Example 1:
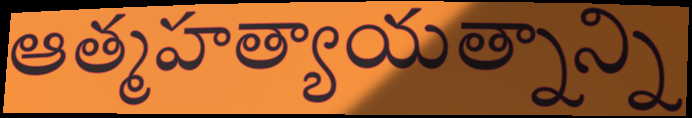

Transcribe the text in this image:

ఆత్మహత్యాయత్నాన్ని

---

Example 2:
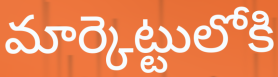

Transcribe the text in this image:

మార్కెట్టులోకి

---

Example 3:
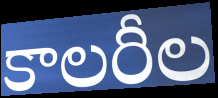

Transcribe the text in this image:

కాలరీల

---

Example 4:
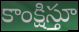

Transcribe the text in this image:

కాంక్షిస్తూ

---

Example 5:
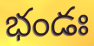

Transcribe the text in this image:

భండః